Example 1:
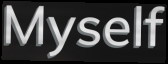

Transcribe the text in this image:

Myself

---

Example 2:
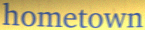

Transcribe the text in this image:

hometown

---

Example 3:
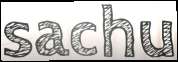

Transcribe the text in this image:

sachu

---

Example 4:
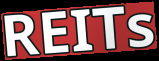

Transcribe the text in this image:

REITs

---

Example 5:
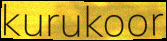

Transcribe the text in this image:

kurukoor